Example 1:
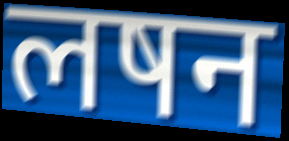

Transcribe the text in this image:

लषन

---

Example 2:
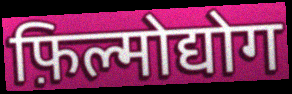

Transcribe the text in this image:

फ़िल्मोद्योग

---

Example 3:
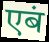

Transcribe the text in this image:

एबं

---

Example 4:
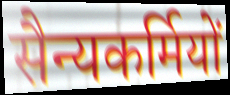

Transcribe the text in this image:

सैन्यकर्मियों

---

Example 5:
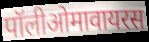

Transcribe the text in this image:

पॉलीओमावायरस